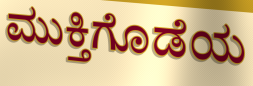
ಮುಕ್ತಿಗೊಡೆಯ